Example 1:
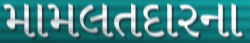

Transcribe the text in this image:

મામલતદારના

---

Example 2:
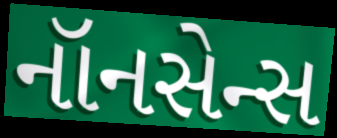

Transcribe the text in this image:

નૉનસેન્સ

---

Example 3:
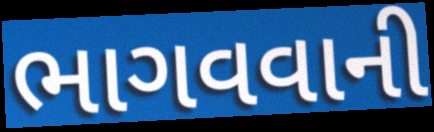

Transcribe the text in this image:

ભાગવવાની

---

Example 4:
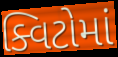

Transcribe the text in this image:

ક્વિટોમાં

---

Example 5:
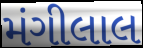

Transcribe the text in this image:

મંગીલાલ